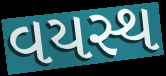
વયસ્થ